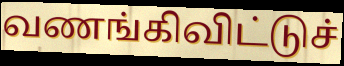
வணங்கிவிட்டுச்